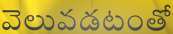
వెలువడటంతో